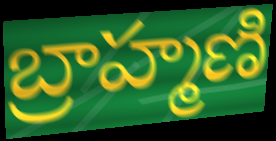
బ్రాహ్మణి